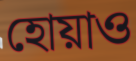
হোয়াও